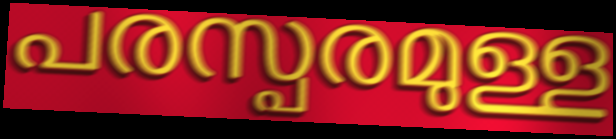
പരസ്പരമുള്ള